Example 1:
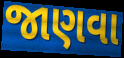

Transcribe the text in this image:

જાણવા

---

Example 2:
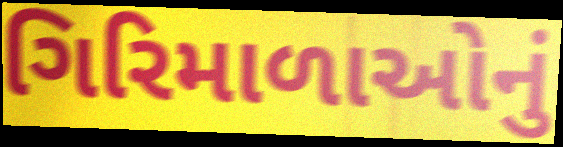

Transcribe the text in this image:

ગિરિમાળાઓનું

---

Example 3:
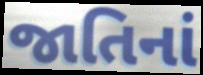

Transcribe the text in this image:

જાતિનાં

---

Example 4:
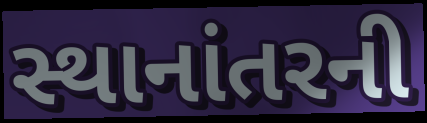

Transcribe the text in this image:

સ્થાનાંતરની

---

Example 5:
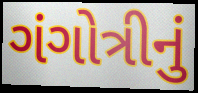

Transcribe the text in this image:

ગંગોત્રીનું